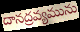
దానద్రవ్యమును